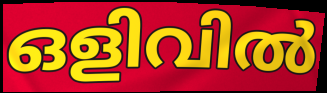
ഒളിവിൽ